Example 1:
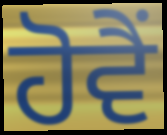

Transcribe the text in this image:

ਹੋਵੈਂ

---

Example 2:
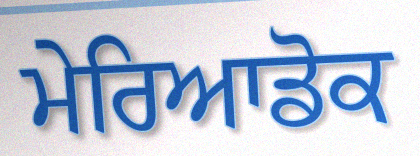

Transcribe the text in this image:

ਮੇਰਿਆਡੋਕ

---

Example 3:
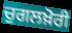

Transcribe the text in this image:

ਚੁਗਲਖ਼ੋਰੀ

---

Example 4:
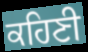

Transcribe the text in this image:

ਕਹਿਣੀ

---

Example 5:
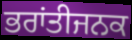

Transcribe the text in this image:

ਭਰਾਂਤੀਜਨਕ